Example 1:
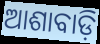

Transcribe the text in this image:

ଆଶାବାଡ଼ି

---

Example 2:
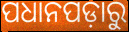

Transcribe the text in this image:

ପଧାନପଡ଼ାରୁ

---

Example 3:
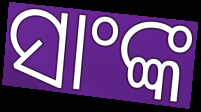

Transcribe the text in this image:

ସାଂଙ୍କ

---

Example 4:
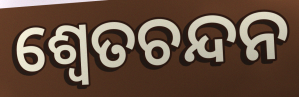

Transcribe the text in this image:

ଶ୍ୱେତଚନ୍ଦନ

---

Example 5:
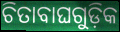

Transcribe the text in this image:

ଚିତାବାଘଗୁଡ଼ିକ